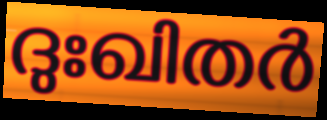
ദുഃഖിതർ